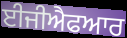
ਈਜੀਐਫਆਰ